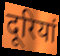
दूरियां